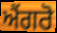
ਐਂਗਰੋ